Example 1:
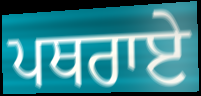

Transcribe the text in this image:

ਪਥਰਾਏ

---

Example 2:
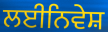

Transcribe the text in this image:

ਲਈਨਿਵੇਸ਼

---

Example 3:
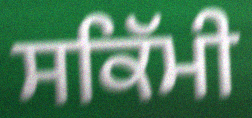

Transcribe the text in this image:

ਸਕਿੱਮੀ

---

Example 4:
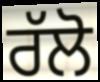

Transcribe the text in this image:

ਰੱਲੋ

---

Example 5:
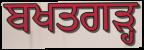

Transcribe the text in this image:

ਬਖਤਗੜ੍ਹ